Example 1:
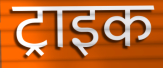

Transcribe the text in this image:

ट्राइक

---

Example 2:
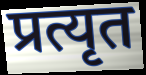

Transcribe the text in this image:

प्रत्यृत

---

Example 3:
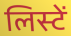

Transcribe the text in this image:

लिस्टें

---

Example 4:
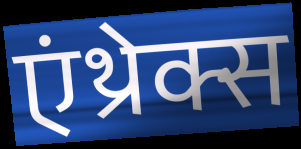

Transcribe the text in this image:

एंथ्रेक्स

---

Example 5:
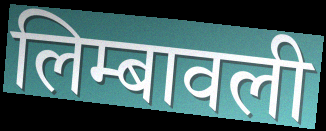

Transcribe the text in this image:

लिम्बावली